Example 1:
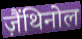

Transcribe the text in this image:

ज़ैंथिनोल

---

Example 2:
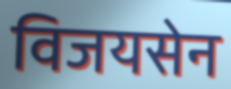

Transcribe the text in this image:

विजयसेन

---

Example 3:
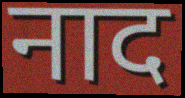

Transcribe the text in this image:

नाद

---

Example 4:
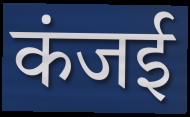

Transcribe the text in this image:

कंजई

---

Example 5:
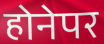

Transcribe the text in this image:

होनेपर